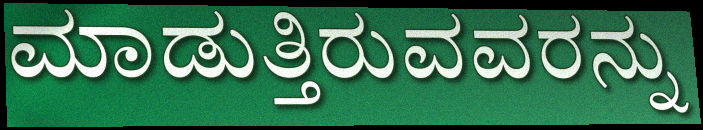
ಮಾಡುತ್ತಿರುವವರನ್ನು